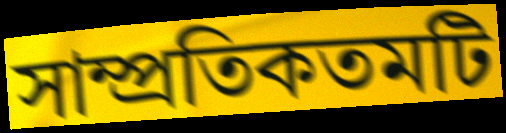
সাম্প্রতিকতমটি